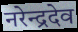
नरेन्द्रदेव